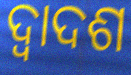
ଦ୍ୱାଦଶ